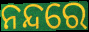
ନନ୍ଦରେ